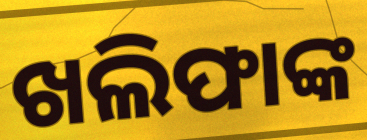
ଖଲିଫାଙ୍କ